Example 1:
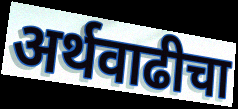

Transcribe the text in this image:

अर्थवाढीचा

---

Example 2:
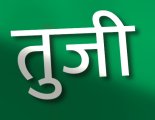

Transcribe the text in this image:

तुजी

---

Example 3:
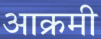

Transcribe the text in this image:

आक्रमी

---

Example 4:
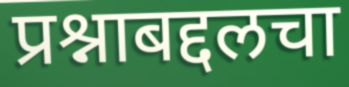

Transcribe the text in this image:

प्रश्नाबद्दलचा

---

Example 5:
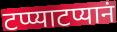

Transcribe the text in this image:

टप्प्याटप्यानं